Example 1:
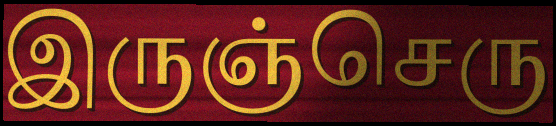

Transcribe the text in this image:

இருஞ்செரு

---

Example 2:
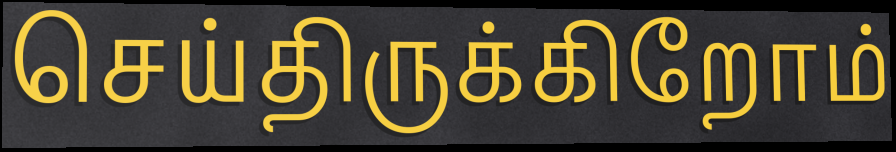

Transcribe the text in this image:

செய்திருக்கிறோம்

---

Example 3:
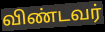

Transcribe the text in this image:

விண்டவர்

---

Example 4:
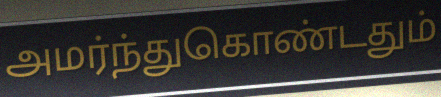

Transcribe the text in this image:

அமர்ந்துகொண்டதும்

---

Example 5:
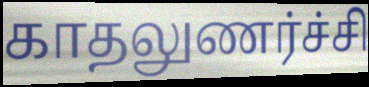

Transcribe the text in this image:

காதலுணர்ச்சி